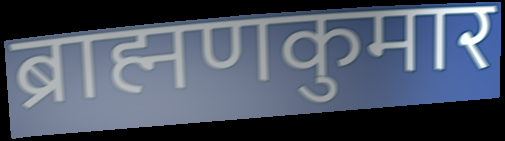
ब्राह्मणकुमार